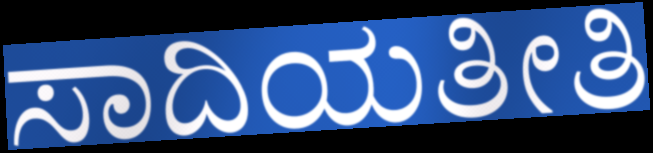
ಸಾದಿಯತೀತಿ